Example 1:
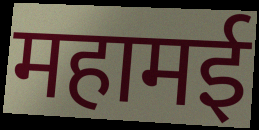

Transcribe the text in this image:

महामई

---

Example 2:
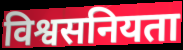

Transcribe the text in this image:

विश्वसनियता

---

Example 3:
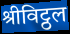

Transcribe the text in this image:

श्रीविट्ठल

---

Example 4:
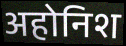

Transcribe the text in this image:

अहोनिश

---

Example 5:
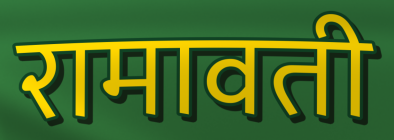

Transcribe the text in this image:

रामावती